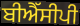
ਬੀਐੱਸੀਪੀ